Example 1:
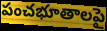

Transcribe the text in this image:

పంచభూతాలపై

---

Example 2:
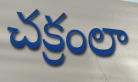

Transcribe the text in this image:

చక్రంలా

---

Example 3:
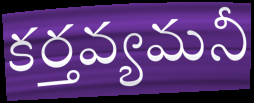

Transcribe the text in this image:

కర్తవ్యమనీ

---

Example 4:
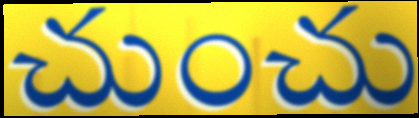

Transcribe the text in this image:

చుంచు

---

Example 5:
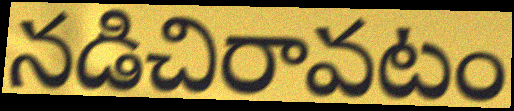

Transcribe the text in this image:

నడిచిరావటం